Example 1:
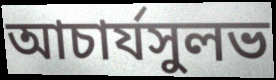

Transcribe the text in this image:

আচার্যসুলভ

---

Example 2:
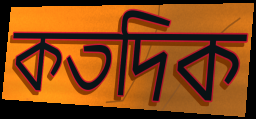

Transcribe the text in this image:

কতদিক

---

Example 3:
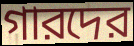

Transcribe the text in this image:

গারদের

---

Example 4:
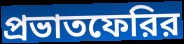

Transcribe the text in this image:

প্রভাতফেরির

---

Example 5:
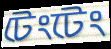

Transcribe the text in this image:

টেংটেং